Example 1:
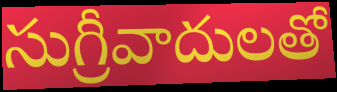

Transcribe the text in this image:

సుగ్రీవాదులతో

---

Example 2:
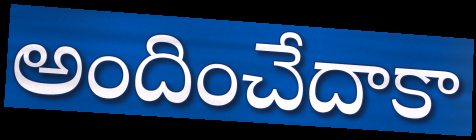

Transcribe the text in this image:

అందించేదాకా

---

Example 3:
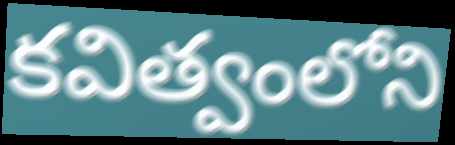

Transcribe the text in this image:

కవిత్వంలోని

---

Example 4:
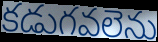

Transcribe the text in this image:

కడుగవలెను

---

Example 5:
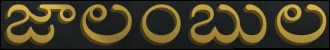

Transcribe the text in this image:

జాలంబుల